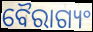
ବୈରାଗ୍ୟଂ